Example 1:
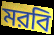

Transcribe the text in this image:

মরবি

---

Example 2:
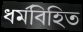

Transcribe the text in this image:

ধর্মবিহিত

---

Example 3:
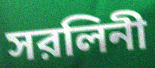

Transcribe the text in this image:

সরলিনী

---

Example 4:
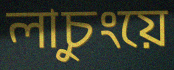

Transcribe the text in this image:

লাচুংয়ে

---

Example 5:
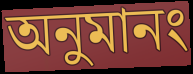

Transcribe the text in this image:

অনুমানং